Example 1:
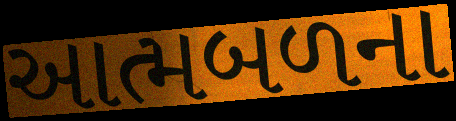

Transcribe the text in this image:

આત્મબળના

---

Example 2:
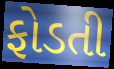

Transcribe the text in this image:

ફોડતી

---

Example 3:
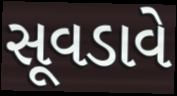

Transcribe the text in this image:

સૂવડાવે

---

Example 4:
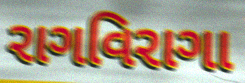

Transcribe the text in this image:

રાગવિરાગા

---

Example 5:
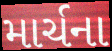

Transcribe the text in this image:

માર્ચના